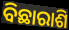
ବିଛାରାଶି